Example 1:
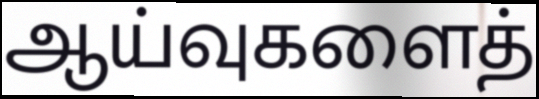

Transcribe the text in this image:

ஆய்வுகளைத்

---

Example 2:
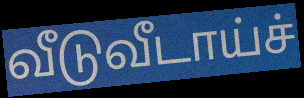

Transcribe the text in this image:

வீடுவீடாய்ச்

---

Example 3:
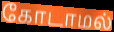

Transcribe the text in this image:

கோடாமல்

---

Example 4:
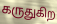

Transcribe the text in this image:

கருதுகிற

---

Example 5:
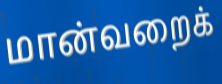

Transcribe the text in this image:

மான்வறைக்